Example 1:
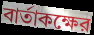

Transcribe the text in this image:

বার্তাকক্ষের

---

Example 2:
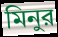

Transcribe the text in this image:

মিনুর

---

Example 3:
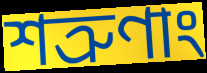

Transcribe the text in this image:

শত্রুণাং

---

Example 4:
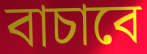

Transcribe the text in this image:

বাচাবে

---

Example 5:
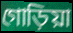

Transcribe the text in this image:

গোড়িয়া